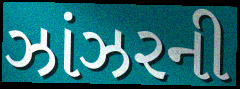
ઝાંઝરની